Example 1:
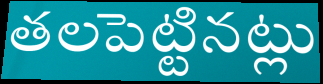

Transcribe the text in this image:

తలపెట్టినట్లు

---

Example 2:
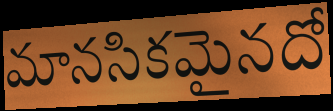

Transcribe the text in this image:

మానసికమైనదో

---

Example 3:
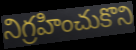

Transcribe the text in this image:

నిగ్రహించుకొని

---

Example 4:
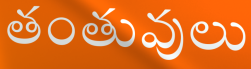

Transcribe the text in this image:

తంతువులు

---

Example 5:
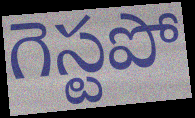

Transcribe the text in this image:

గెస్టపో